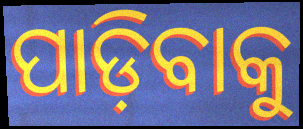
ପାଡ଼ିବାକୁ